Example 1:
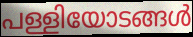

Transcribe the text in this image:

പള്ളിയോടങ്ങൾ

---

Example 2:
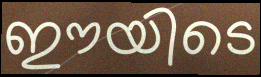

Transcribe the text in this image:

ഈയിടെ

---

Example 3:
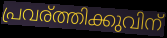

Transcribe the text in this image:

പ്രവര്ത്തിക്കുവിന്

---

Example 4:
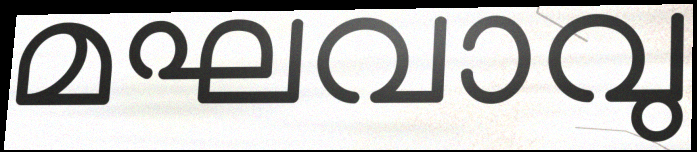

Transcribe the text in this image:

മഘവാവു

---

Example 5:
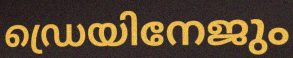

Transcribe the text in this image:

ഡ്രെയിനേജും